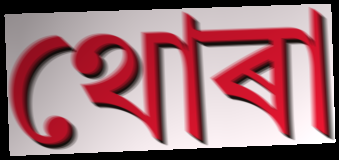
থোৰা